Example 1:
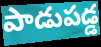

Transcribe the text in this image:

పాడుపడ్డ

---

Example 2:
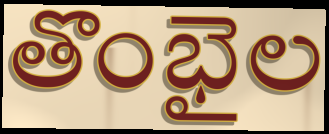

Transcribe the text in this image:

తొంభైల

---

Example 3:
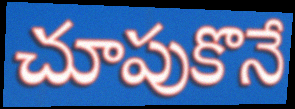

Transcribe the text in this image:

చూపుకొనే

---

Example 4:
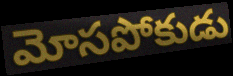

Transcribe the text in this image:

మోసపోకుడు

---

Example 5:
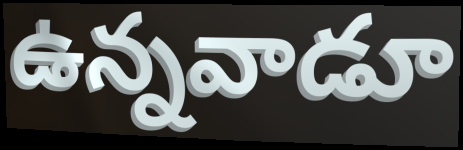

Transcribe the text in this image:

ఉన్నవాడూ